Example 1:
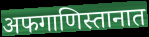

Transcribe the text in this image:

अफगाणिस्तानात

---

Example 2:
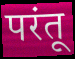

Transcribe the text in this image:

परंतू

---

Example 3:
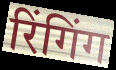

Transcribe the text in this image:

रिंगिंग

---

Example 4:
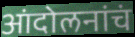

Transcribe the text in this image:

आंदोलनांचं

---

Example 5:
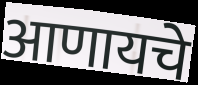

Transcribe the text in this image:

आणायचे